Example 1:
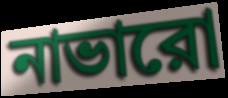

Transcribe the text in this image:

নাভারো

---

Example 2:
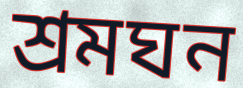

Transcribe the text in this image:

শ্রমঘন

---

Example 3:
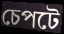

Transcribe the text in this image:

চেপটে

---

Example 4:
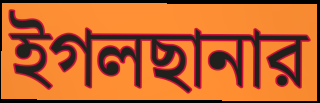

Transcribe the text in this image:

ইগলছানার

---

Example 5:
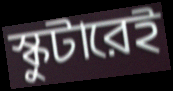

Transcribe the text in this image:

স্কুটারেই